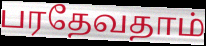
பரதேவதாம்